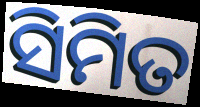
ସିମିତ